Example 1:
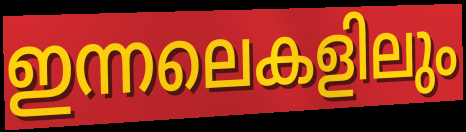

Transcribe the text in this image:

ഇന്നലെകളിലും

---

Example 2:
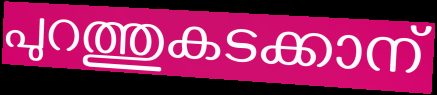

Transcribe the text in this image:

പുറത്തുകടക്കാന്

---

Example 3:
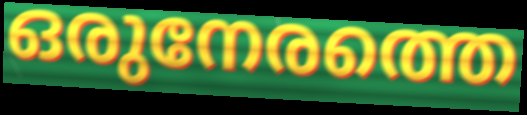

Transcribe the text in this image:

ഒരുനേരത്തെ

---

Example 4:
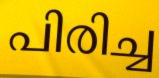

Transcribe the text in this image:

പിരിച്ച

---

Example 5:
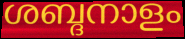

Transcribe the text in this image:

ശബ്ദനാളം